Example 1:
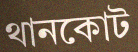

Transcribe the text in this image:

থানকোট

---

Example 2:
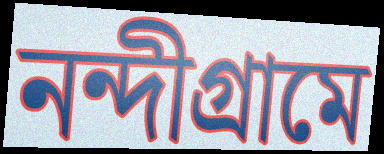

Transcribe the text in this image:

নন্দীগ্রামে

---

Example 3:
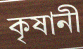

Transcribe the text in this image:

কৃষানী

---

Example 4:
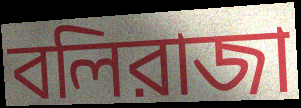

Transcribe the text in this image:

বলিরাজা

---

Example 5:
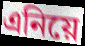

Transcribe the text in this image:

এনিয়ে